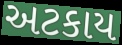
અટકાય